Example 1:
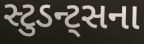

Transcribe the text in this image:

સ્ટુડન્ટ્સના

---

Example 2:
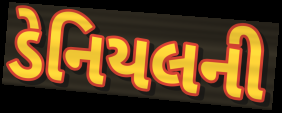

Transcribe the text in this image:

ડેનિયલની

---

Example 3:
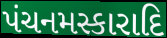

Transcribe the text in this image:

પંચનમસ્કારાદિ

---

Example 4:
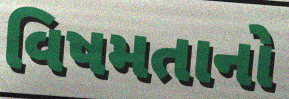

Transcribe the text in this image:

વિષમતાનો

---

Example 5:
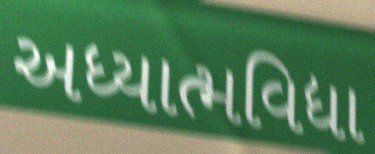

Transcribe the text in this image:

અધ્યાત્મવિદ્યા